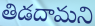
తిడదామని